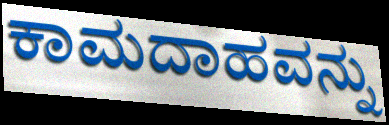
ಕಾಮದಾಹವನ್ನು